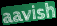
aavish